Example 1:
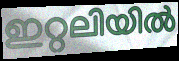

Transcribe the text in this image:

ഇറ്റലിയിൽ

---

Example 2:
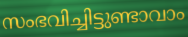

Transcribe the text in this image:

സംഭവിച്ചിട്ടുണ്ടാവാം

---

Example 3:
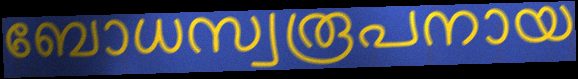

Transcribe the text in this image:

ബോധസ്വരൂപനായ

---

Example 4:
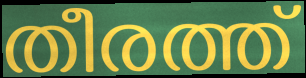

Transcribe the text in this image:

തീരത്ത്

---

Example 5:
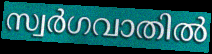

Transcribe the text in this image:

സ്വർഗവാതിൽ